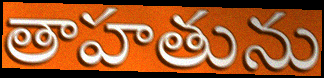
తాహతును